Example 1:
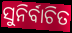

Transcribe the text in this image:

ସୁନିର୍ବାଚିତ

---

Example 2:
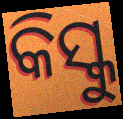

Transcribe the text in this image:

କିସ୍କୁ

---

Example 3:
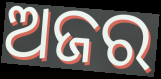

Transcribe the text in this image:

ଅଜର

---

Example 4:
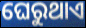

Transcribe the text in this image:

ଘେରୁଥାଏ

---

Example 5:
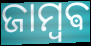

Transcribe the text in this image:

ଜାମ୍ବଵ